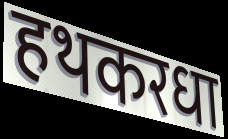
हथकरधा